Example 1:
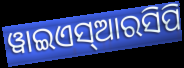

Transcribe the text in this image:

ୱାଇଏସ୍ଆରସିପି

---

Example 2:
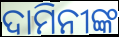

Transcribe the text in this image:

ଦାମିନୀଙ୍କ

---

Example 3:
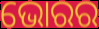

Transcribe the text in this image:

ଭୋରର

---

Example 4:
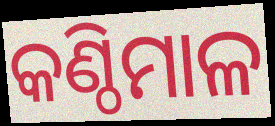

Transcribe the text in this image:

କଣ୍ଠିମାଳ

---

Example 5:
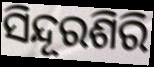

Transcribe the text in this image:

ସିନ୍ଦୂରଶିରି